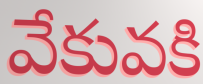
వేకువకి